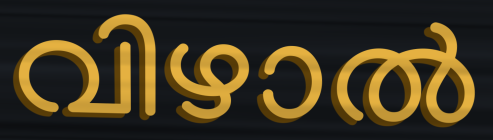
വിഴാൽ